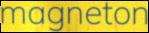
magneton